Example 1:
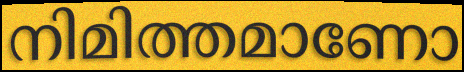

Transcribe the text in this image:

നിമിത്തമാണോ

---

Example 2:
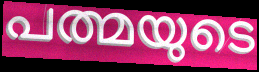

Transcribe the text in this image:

പത്മയുടെ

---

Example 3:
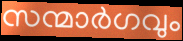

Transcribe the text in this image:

സന്മാർഗവും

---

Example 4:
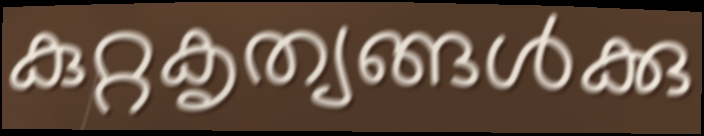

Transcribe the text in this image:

കുറ്റകൃത്യങ്ങൾക്കു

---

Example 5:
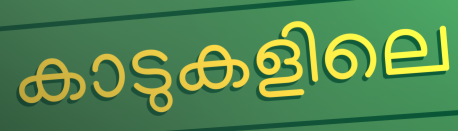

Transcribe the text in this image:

കാടുകളിലെ